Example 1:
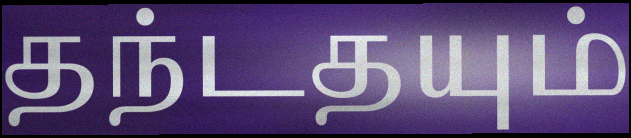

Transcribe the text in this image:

தந்டதயும்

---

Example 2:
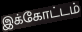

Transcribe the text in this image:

இக்கோட்டம்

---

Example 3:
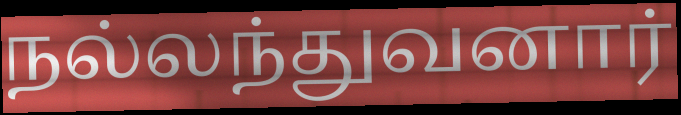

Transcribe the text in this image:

நல்லந்துவனார்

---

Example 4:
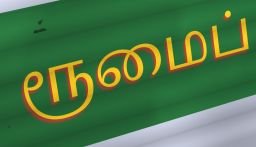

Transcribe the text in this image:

ரூமைப்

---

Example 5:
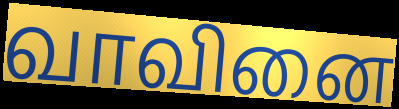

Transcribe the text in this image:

வாவினை